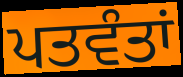
ਪਤਵੰਤਾਂ